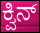
ಕ್ವಿನ್